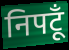
निपटूँ